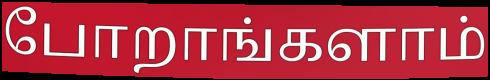
போறாங்களாம்